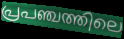
പ്രപഞ്ചത്തിലെ